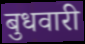
बुधवारी